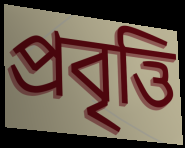
প্ৰবৃত্তি